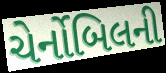
ચેર્નોબિલની